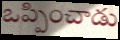
ఒప్పించాడు